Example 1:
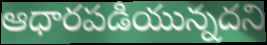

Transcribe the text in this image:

ఆధారపడియున్నదని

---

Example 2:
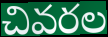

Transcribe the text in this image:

చివరల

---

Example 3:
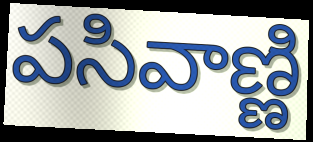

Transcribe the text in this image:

పసివాణ్ణి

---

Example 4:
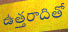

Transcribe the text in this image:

ఉత్తరాదితో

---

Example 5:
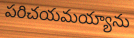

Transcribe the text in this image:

పరిచయమయ్యాను